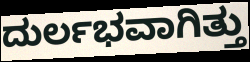
ದುರ್ಲಭವಾಗಿತ್ತು